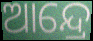
ଆନ୍ଦ୍ରେ